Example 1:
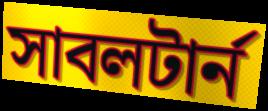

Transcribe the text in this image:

সাবলটার্ন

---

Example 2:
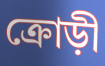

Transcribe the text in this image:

ক্রোড়ী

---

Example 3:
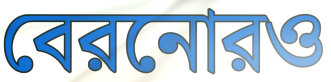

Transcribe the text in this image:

বেরনোরও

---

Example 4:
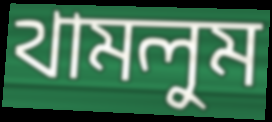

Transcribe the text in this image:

থামলুম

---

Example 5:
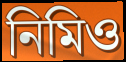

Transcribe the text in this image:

নিমিও